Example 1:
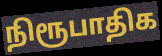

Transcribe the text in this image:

நிரூபாதிக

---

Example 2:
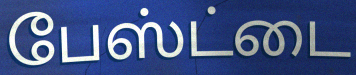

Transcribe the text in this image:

பேஸ்ட்டை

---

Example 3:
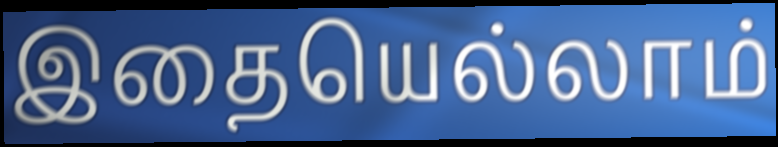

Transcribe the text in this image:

இதையெல்லாம்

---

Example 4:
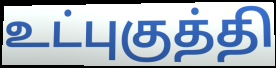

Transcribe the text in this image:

உட்புகுத்தி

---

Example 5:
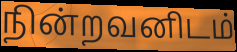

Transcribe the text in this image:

நின்றவனிடம்